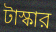
টাস্কার